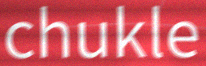
chukle